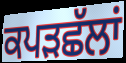
ਕਪੜਛੱਲਾਂ